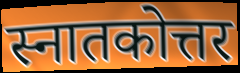
स्नातकोत्तर